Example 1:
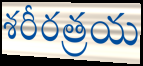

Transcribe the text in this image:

శరీరత్రయ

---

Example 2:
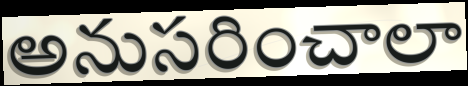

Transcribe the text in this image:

అనుసరించాలా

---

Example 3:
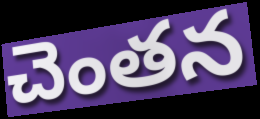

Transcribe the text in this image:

చెంతన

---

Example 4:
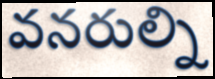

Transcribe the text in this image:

వనరుల్ని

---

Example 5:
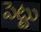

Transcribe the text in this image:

పెట్టు